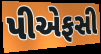
પીએફસી